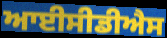
ਆਈਸੀਡੀਐਸ